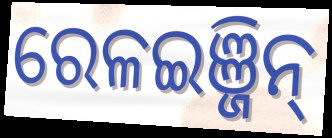
ରେଳଇଞ୍ଜିନ୍